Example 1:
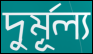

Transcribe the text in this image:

দুর্মূল্য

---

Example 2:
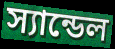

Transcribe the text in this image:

স্যান্ডেল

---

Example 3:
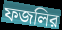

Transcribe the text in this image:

ফজলির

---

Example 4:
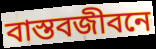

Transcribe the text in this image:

বাস্তবজীবনে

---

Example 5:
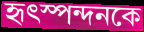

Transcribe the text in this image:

হৃৎস্পন্দনকে